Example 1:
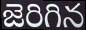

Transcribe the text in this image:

జెరిగిన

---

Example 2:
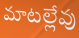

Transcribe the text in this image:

మాటల్లేవు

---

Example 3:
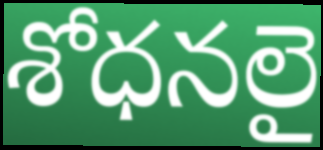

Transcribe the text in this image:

శోధనలై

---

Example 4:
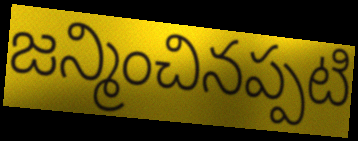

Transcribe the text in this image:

జన్మించినప్పటి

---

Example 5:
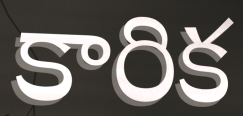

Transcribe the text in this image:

కారిక